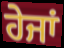
ਹੇਜਾਂ